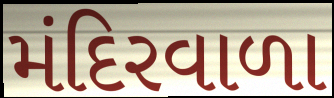
મંદિરવાળા